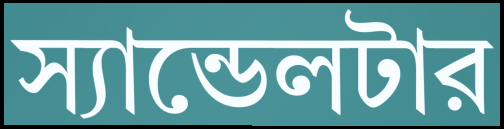
স্যান্ডেলটার